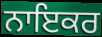
ਨਾਇਕਰ